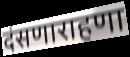
दंसणाराहणा